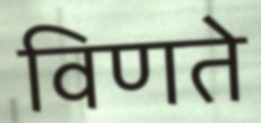
विणते